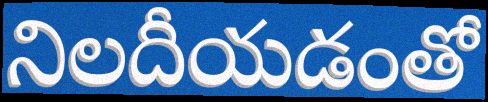
నిలదీయడంతో